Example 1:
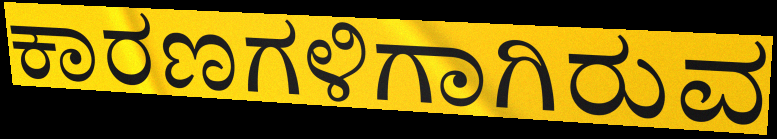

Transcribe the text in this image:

ಕಾರಣಗಳಿಗಾಗಿರುವ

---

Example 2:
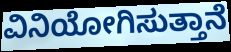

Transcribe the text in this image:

ವಿನಿಯೋಗಿಸುತ್ತಾನೆ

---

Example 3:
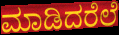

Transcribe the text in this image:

ಮಾಡಿದರೆಲೆ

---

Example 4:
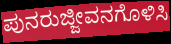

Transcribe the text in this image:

ಪುನರುಜ್ಜೀವನಗೊಳಿಸಿ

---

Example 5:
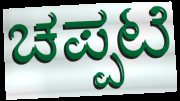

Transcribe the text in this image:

ಚಪ್ಪಟೆ